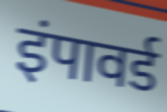
इंपावर्ड